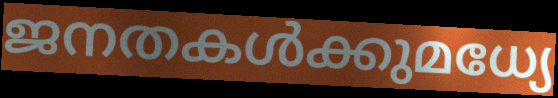
ജനതകൾക്കുമധ്യേ